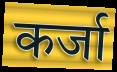
कर्जा